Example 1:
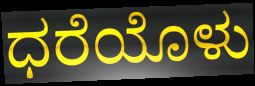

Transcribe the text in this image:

ಧರೆಯೊಳು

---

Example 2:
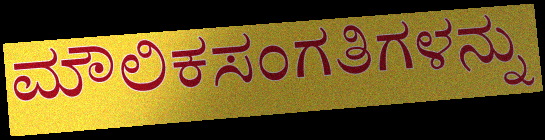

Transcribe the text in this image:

ಮೌಲಿಕಸಂಗತಿಗಳನ್ನು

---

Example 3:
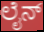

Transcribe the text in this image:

ಲೈನ್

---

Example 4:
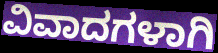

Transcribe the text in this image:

ವಿವಾದಗಳಾಗಿ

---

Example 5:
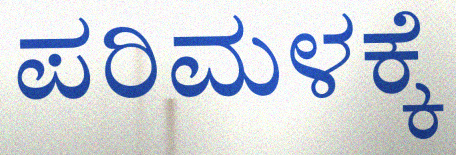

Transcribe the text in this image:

ಪರಿಮಳಕ್ಕೆ